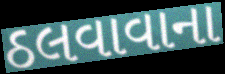
ઠલવાવાના